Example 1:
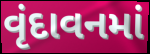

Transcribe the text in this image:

વૃંદાવનમાં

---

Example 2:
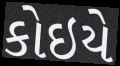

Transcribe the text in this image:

કોઇયે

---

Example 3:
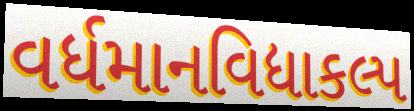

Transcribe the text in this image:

વર્ધમાનવિદ્યાકલ્પ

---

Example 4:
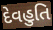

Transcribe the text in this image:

દેવહુતિ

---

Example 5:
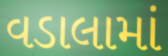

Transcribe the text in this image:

વડાલામાં